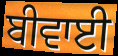
ਬੀਵਾਈ